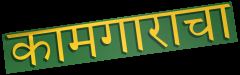
कामगाराचा